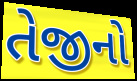
તેજીનો